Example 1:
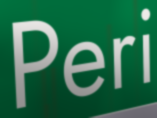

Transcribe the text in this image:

Peri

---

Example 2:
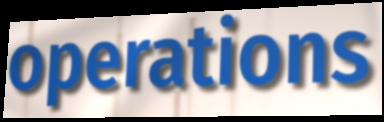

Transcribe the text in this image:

operations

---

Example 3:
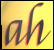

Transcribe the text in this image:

ah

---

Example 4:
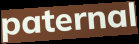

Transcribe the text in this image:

paternal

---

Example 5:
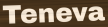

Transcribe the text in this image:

Teneva